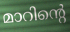
മാറിന്റെ